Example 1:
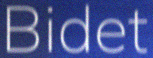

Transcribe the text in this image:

Bidet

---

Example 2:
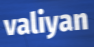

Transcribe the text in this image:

valiyan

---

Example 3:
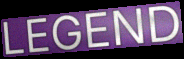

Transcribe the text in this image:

LEGEND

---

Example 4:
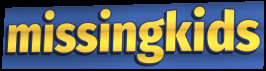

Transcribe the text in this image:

missingkids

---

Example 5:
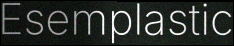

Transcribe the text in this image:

Esemplastic